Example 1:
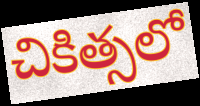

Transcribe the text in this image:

చికిత్సలో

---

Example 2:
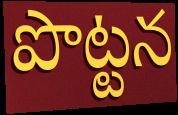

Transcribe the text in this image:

పొట్టన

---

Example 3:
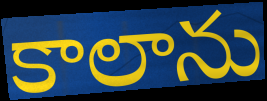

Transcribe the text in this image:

కాలాను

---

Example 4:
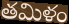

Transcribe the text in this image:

తమిళం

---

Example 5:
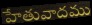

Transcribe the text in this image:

హేతువాదము